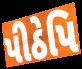
પીઠેપિ